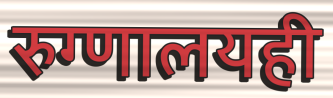
रुग्णालयही